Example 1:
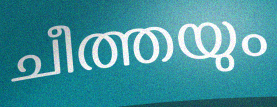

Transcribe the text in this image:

ചീത്തയും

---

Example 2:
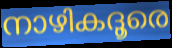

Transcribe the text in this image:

നാഴികദൂരെ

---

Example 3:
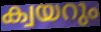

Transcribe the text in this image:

ക്വയറും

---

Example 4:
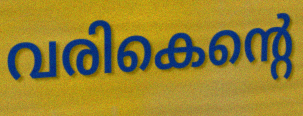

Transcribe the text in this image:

വരികെന്റെ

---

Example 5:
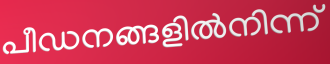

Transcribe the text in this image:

പീഡനങ്ങളിൽനിന്ന്